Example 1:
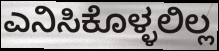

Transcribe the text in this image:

ಎನಿಸಿಕೊಳ್ಳಲಿಲ್ಲ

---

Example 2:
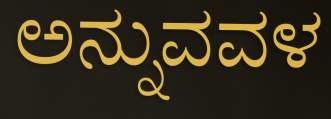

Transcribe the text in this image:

ಅನ್ನುವವಳ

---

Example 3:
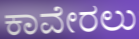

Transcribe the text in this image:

ಕಾವೇರಲು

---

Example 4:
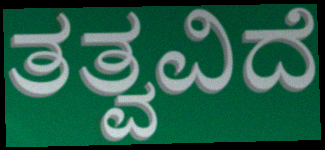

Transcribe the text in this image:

ತತ್ವವಿದೆ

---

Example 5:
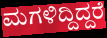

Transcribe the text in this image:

ಮಗಳಿದ್ದಿದ್ದರೆ